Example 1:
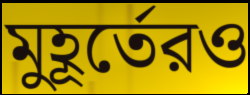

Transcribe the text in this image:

মুহূর্তেরও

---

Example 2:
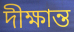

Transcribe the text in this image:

দীক্ষান্ত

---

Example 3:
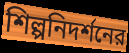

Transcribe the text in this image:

শিল্পনিদর্শনের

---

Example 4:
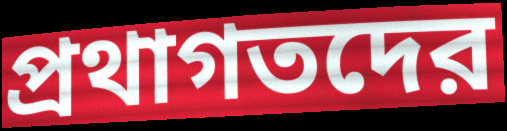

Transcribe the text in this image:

প্রথাগতদের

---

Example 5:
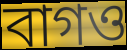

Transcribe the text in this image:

বাগও